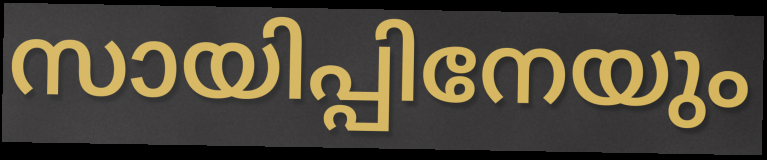
സായിപ്പിനേയും